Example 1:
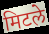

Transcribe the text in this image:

मिटले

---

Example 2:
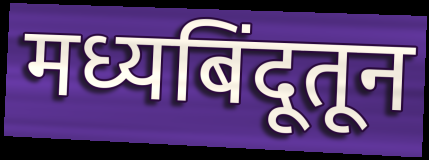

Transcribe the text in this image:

मध्यबिंदूतून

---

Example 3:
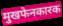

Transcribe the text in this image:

मुखफेनकारक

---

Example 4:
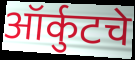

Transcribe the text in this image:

ऑर्कुटचे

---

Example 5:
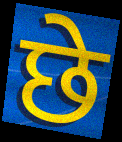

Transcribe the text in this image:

छे